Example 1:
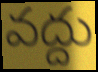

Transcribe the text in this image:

వద్దు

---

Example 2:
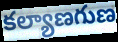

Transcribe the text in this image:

కల్యాణగుణ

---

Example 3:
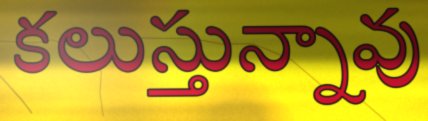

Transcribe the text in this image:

కలుస్తున్నావు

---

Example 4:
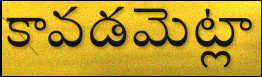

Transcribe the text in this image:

కావడమెట్లా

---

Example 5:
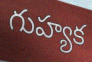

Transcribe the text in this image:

గుహ్యక